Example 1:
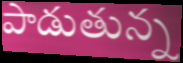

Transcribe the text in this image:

పాడుతున్న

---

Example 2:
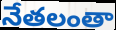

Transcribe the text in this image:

నేతలంతా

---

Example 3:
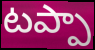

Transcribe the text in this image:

టప్పా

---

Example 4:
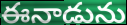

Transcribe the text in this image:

ఈనాడును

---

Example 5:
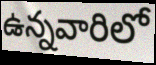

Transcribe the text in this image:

ఉన్నవారిలో